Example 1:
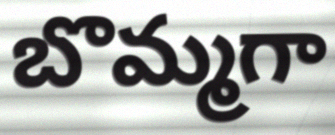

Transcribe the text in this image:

బొమ్మగా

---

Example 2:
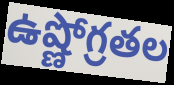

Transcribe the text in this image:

ఉష్ణోగ్రతల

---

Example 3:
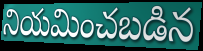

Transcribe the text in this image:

నియమించబడిన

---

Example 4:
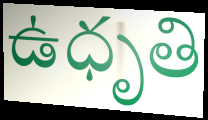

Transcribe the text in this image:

ఉధృతి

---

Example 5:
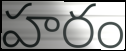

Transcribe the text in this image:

హరం